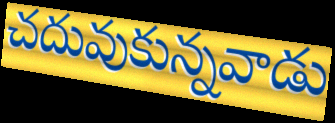
చదువుకున్నవాడు